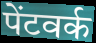
पेंटवर्क